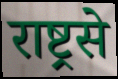
राष्ट्रसे